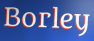
Borley